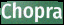
Chopra